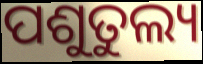
ପଶୁତୁଲ୍ୟ